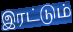
இரட்டும்